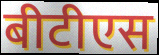
बीटीएस